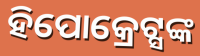
ହିପୋକ୍ରେଟ୍ସଙ୍କ